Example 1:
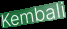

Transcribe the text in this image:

Kembali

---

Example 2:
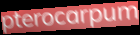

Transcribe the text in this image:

pterocarpum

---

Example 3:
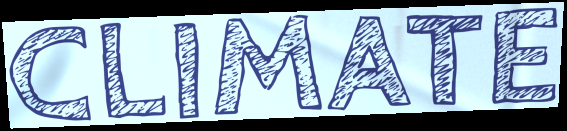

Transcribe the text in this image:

CLIMATE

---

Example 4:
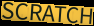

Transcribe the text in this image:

SCRATCH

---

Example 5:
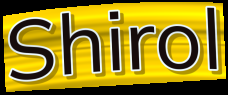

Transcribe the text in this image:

Shirol